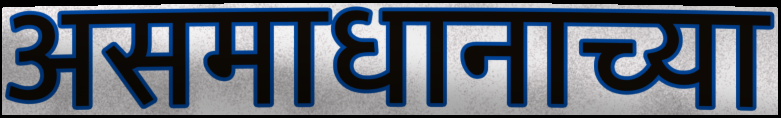
असमाधानाच्या